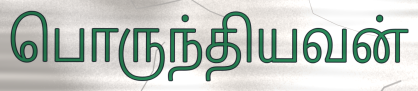
பொருந்தியவன்